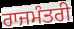
ਰਾਜਮੰਤਰੀ